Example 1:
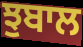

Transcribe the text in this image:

ਝੁਬਾਲ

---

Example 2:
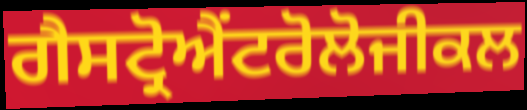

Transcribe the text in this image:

ਗੈਸਟ੍ਰੋਐਂਟਰੋਲੋਜੀਕਲ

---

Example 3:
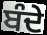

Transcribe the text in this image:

ਬੰਦੇ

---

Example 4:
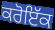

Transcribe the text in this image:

ਕਰੋਇੱਕ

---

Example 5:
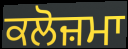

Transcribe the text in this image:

ਕਲੋਜ਼ਮਾ